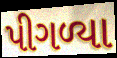
પીગળ્યા